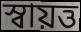
স্বায়ত্ত